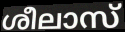
ശീലാസ്